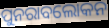
ପୁନରାବଲୋକନ